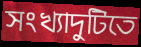
সংখ্যাদুটিতে